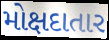
મોક્ષદાતાર